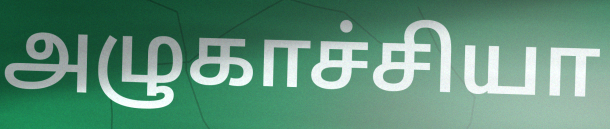
அழுகாச்சியா